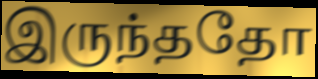
இருந்ததோ